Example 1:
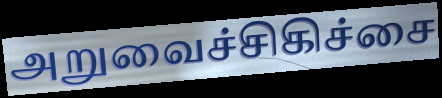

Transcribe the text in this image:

அறுவைச்சிகிச்சை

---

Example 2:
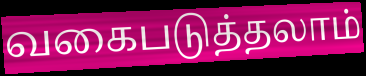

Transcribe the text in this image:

வகைபடுத்தலாம்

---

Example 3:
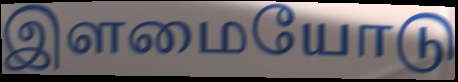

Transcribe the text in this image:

இளமையோடு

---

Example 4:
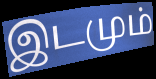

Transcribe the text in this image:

இடமும்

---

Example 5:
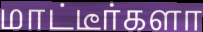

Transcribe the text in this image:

மாட்டீர்களா